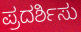
ಪ್ರದರ್ಶಿಸು